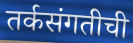
तर्कसंगतीची